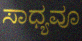
ಸಾಧ್ಯವೂ